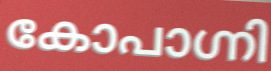
കോപാഗ്നി